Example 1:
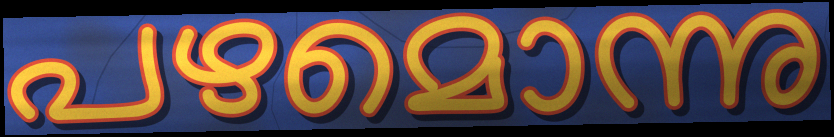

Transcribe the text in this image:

പഴമൊന്നു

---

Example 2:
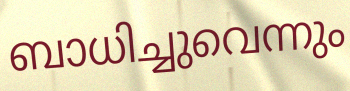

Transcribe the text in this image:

ബാധിച്ചുവെന്നും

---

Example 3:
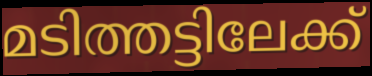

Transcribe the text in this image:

മടിത്തട്ടിലേക്ക്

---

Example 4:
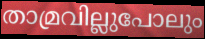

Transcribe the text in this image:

താമ്രവില്ലുപോലും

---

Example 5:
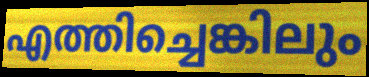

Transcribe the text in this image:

എത്തിച്ചെങ്കിലും